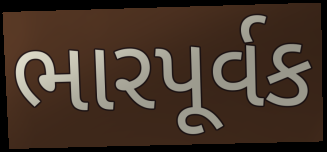
ભારપૂર્વક